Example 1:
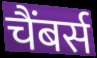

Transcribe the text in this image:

चैंबर्स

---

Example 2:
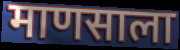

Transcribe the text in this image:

माणसाला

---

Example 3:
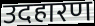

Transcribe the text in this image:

उदहारण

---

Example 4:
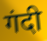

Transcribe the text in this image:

गंदी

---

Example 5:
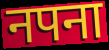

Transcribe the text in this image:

नपना